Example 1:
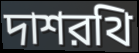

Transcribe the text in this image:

দাশরথি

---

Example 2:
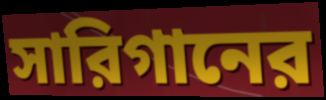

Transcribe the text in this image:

সারিগানের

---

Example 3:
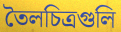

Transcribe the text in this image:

তৈলচিত্রগুলি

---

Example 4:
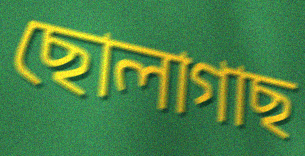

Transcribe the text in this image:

ছোলাগাছ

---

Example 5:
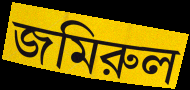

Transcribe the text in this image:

জমিরুল